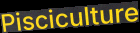
Pisciculture